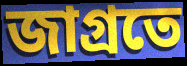
জাগ্রতে